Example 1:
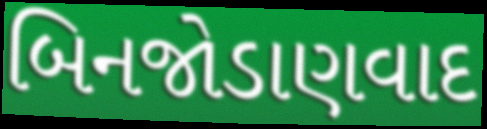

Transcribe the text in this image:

બિનજોડાણવાદ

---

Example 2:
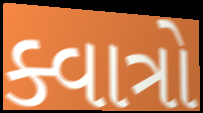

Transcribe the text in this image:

ક્વાત્રો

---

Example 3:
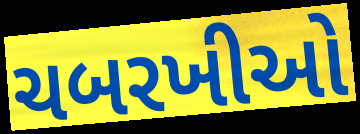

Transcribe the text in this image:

ચબરખીઓ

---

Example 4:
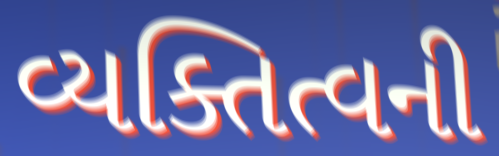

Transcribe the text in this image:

વ્યક્તિત્વની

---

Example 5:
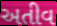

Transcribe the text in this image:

અતીવ